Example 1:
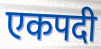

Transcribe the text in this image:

एकपदी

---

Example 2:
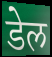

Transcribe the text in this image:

डेल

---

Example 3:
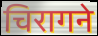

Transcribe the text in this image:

चिरागने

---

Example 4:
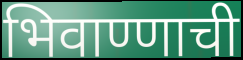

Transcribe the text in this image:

भिवाण्णाची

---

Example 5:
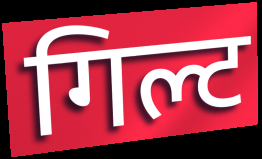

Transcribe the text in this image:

गिल्ट